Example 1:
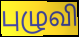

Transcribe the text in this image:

புழுவி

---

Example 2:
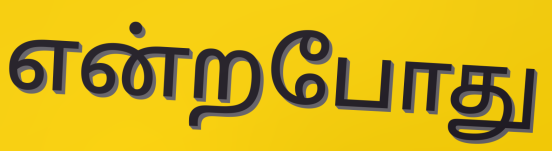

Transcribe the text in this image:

என்றபோது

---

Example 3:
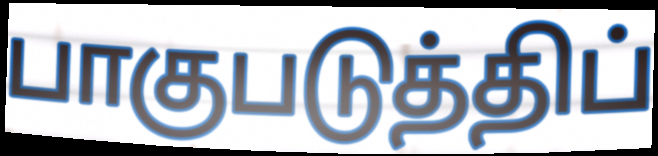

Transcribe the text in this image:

பாகுபடுத்திப்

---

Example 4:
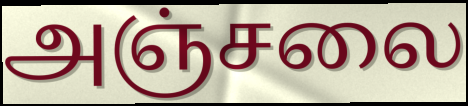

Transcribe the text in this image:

அஞ்சலை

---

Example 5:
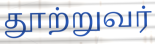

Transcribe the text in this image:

தூற்றுவர்